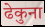
ढेकुना